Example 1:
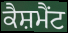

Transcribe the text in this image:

ਕੈਸ਼ਮੈਂਟ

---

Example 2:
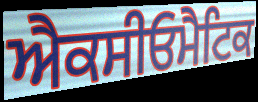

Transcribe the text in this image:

ਐਕਸੀਓਮੈਟਿਕ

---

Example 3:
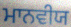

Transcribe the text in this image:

ਮਾਨਵੀਯ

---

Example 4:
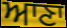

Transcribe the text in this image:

ਆਣਾ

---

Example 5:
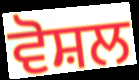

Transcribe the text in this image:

ਵੋਸ਼ਲ